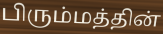
பிரும்மத்தின்